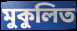
মুকুলিত